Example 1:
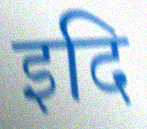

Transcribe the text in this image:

इदि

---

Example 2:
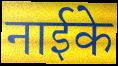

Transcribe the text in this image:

नाईके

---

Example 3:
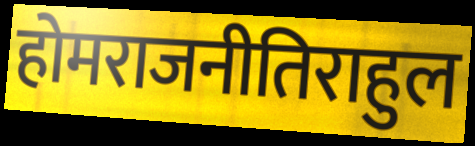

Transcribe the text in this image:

होमराजनीतिराहुल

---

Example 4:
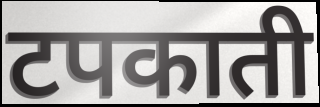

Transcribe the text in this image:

टपकाती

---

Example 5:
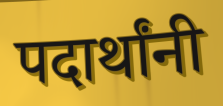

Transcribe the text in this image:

पदार्थांनी